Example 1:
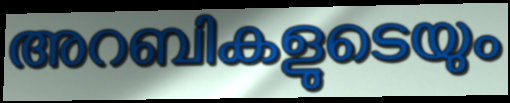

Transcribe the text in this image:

അറബികളുടെയും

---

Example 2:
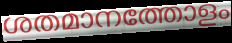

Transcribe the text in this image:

ശതമാനത്തോളം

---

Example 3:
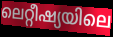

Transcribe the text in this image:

ലെറ്റീഷ്യയിലെ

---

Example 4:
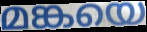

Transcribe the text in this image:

മങ്കയെ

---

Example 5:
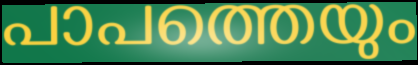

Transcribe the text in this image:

പാപത്തെയും